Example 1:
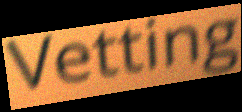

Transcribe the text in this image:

Vetting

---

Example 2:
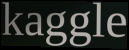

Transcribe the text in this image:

kaggle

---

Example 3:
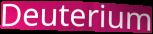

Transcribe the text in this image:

Deuterium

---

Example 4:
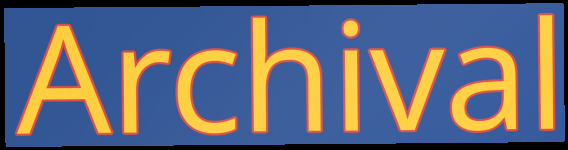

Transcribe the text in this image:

Archival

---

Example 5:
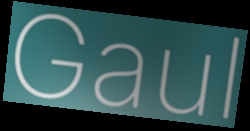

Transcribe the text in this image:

Gaul